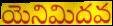
యెనిమిదవ